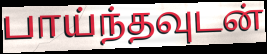
பாய்ந்தவுடன்